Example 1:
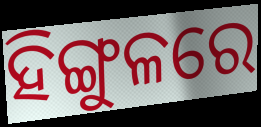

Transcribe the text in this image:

ହିଙ୍ଗୁଳରେ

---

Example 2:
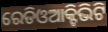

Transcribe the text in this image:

ରେଡିଓଆକ୍ଟିଭିଟି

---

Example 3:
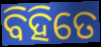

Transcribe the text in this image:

ବିହିତେ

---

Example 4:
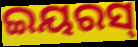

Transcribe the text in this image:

ଇୟରସ୍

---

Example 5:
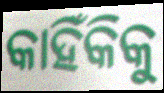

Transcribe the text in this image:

କାହିଁକିକୁ